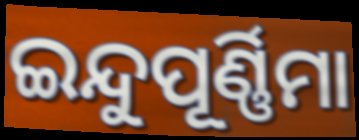
ଇନ୍ଦୁପୂର୍ଣ୍ଣିମା